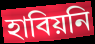
হাবিয়নি